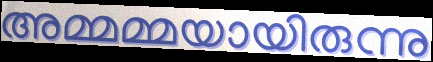
അമ്മമ്മയായിരുന്നു